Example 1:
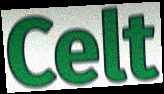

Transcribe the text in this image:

Celt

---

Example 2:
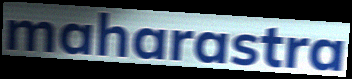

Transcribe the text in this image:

maharastra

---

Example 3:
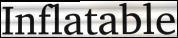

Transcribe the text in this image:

Inflatable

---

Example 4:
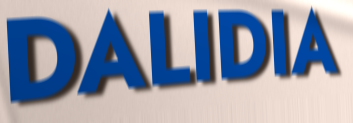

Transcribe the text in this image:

DALIDIA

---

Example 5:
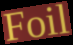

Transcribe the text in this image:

Foil